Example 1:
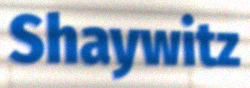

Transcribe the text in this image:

Shaywitz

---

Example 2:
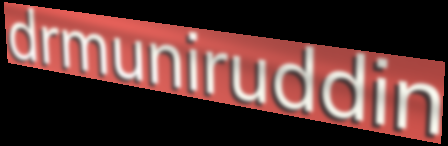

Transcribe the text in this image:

drmuniruddin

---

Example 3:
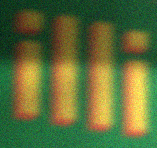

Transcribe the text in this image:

illi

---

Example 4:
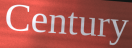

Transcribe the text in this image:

Century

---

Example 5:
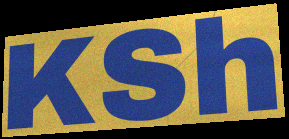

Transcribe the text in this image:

KSh